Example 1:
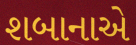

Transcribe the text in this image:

શબાનાએ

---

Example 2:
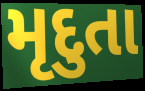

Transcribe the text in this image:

મૃદુતા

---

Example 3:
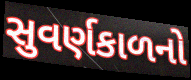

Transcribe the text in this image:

સુવર્ણકાળનો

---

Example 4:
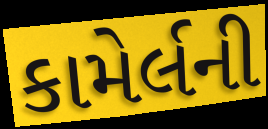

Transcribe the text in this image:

કામેર્લની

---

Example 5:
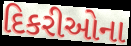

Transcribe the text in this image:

દિકરીઓના